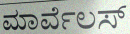
ಮಾರ್ವೆಲಸ್